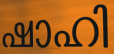
ഷാഹി